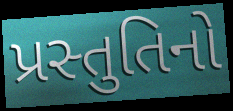
પ્રસ્તુતિનો